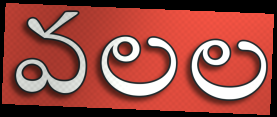
వలల